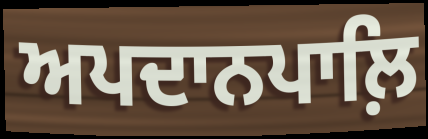
ਅਪਦਾਨਪਾਲ਼ਿ